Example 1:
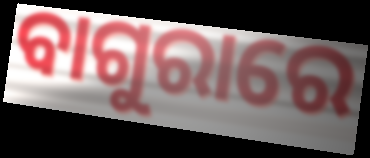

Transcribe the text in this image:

ବାଗୁରାରେ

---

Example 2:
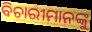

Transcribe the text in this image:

ବିଚାରୀମାନଙ୍କୁ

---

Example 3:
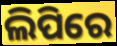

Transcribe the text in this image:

ଲିପିରେ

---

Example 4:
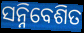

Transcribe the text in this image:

ସନ୍ନିବେଶିତ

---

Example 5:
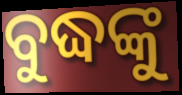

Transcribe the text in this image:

ବୁଦ୍ଧଙ୍କୁ